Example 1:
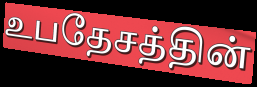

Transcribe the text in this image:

உபதேசத்தின்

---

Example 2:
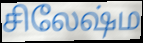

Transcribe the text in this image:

சிலேஷ்ம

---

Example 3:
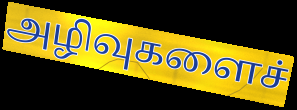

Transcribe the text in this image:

அழிவுகளைச்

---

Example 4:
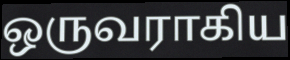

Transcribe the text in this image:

ஒருவராகிய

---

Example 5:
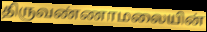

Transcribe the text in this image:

திருவண்ணாமலையின்